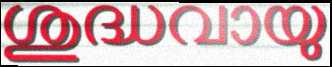
ശുദ്ധവായു